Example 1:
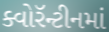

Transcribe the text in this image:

ક્વોરૅન્ટીનમાં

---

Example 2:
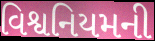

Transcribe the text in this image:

વિશ્વનિયમની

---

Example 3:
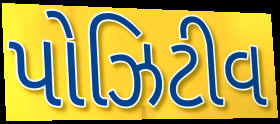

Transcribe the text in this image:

પોઝિટીવ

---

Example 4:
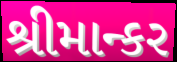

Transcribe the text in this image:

શ્રીમાન્કર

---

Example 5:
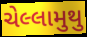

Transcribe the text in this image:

ચેલ્લામુથુ